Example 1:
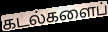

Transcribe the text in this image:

கடல்களைப்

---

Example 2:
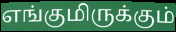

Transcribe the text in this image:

எங்குமிருக்கும்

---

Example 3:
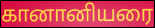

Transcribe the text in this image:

கானானியரை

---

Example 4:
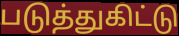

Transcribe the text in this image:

படுத்துகிட்டு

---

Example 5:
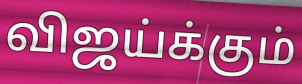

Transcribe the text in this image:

விஜய்க்கும்